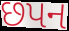
છપન